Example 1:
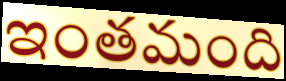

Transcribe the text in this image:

ఇంతమంది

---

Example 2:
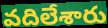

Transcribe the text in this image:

వదిలేశారు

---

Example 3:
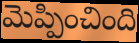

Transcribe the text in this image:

మెప్పించింది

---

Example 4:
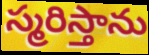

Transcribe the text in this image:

స్మరిస్తాను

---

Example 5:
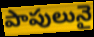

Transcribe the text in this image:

పాపులునై